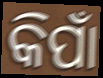
କିପାଁ